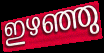
ഇഴഞ്ഞു